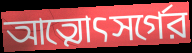
আত্মোৎসর্গের